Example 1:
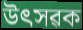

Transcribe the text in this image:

উৎসৱক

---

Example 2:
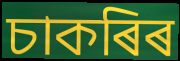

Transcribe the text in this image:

চাকৰিৰ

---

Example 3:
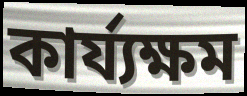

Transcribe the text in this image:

কাৰ্য্যক্ষম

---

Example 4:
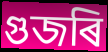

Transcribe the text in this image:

গুজৰি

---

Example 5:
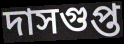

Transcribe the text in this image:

দাসগুপ্ত